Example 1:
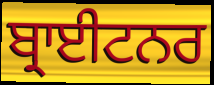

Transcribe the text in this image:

ਬ੍ਰਾਈਟਨਰ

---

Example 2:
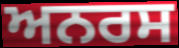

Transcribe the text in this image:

ਅਨਰਸ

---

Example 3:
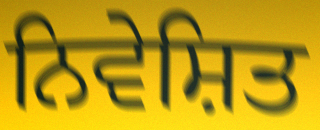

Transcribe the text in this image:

ਨਿਵੇਸ਼ਿਤ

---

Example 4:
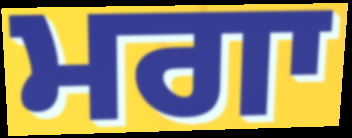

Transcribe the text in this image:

ਮਗਾ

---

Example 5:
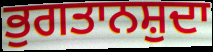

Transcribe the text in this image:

ਭੁਗਤਾਨਸ਼ੁਦਾ